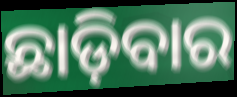
ଛାଡ଼ିବାର